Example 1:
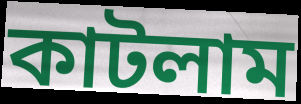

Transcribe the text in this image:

কাটলাম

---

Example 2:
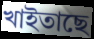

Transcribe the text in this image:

খাইতাছে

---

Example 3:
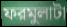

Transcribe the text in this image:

ফরমুলাটা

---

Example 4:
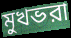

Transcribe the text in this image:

মুখভরা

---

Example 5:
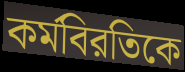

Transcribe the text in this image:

কর্মবিরতিকে